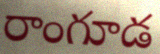
రాంగూడ